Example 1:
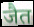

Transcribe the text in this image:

जैत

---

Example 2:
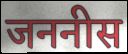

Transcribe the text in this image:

जननीस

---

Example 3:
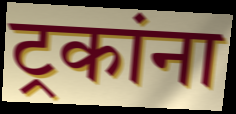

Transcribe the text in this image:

ट्रकांना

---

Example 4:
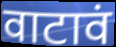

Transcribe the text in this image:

वाटावं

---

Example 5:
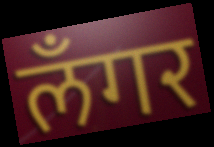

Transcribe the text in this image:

लँगर